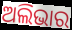
ଅଲିଭାର